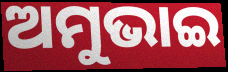
ଅମୁଭାଇ